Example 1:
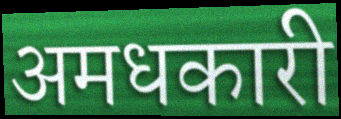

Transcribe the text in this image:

अमधकारी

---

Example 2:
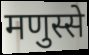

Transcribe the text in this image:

मणुस्से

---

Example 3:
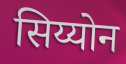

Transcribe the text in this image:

सिय्योन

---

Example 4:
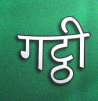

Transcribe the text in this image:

गट्ठी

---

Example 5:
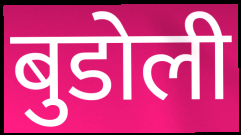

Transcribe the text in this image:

बुडोली